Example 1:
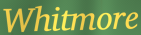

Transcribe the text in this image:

Whitmore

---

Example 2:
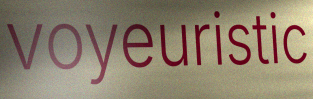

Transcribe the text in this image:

voyeuristic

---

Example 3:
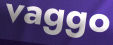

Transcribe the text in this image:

vaggo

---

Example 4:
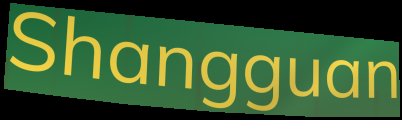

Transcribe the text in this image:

Shangguan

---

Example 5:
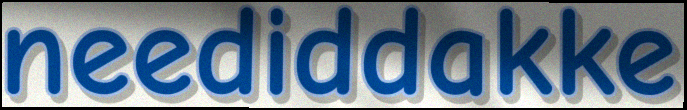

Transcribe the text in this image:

neediddakke